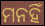
ମନହିଁ